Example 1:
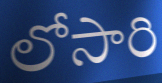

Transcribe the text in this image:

లోసారి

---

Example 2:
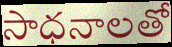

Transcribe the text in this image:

సాధనాలతో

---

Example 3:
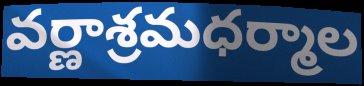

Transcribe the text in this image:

వర్ణాశ్రమధర్మాల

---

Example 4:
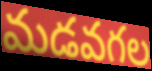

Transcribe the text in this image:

మడవగల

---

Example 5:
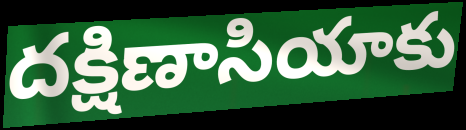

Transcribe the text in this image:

దక్షిణాసియాకు